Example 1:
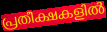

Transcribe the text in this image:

പ്രതീക്ഷകളിൽ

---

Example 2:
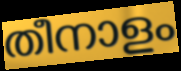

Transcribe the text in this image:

തീനാളം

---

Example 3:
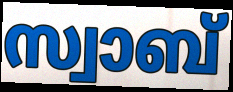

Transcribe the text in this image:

സ്വാബ്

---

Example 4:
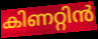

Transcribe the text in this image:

കിണറ്റിൻ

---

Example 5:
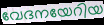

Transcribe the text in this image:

വേദനയേറിയ